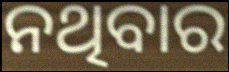
ନଥିବାର